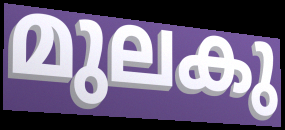
മുലകു